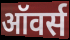
ऑवर्स